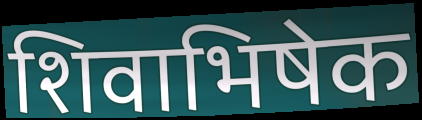
शिवाभिषेक